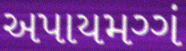
અપાયમગ્ગં